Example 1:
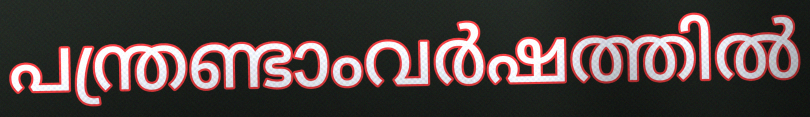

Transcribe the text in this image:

പന്ത്രണ്ടാംവർഷത്തിൽ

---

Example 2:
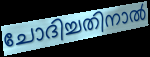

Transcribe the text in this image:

ചോദിച്ചതിനാൽ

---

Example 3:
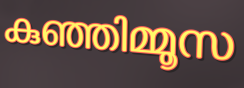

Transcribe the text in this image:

കുഞ്ഞിമ്മൂസ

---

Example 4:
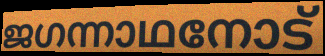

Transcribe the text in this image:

ജഗന്നാഥനോട്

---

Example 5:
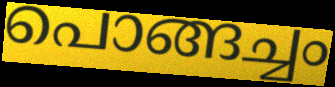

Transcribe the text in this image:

പൊങ്ങച്ചം